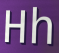
Hh